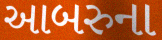
આબરુના